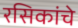
रसिकांचे